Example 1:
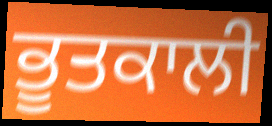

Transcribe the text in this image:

ਭੂਤਕਾਲੀ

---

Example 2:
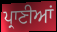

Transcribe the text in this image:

ਪ੍ਰਾਣੀਆਂ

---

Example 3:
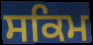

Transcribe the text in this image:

ਸਕਿਮ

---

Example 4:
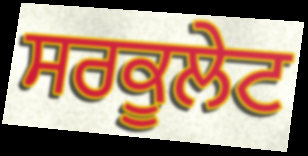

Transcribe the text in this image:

ਸਰਕੂਲੇਟ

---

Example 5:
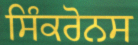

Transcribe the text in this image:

ਸਿੰਕਰੋਨਸ